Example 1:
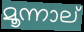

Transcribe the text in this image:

മൂന്നാല്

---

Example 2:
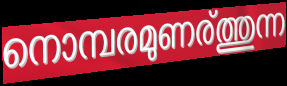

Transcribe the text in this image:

നൊമ്പരമുണര്ത്തുന്ന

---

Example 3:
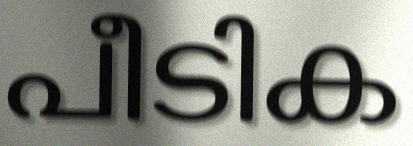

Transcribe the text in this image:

പീടിക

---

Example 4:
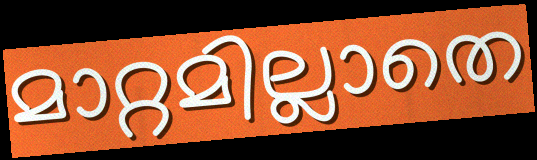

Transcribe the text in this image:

മാറ്റമില്ലാതെ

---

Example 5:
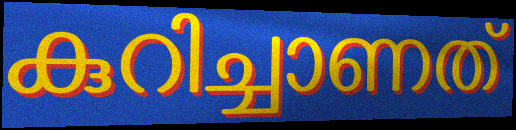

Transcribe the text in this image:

കുറിച്ചാണത്